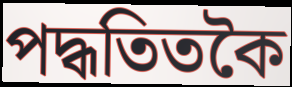
পদ্ধতিতকৈ